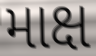
માક્ષ